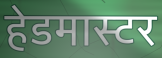
हेडमास्टर